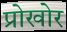
प्रोखोर